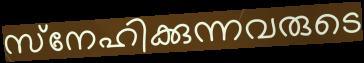
സ്‌നേഹിക്കുന്നവരുടെ